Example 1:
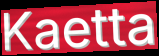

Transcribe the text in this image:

Kaetta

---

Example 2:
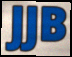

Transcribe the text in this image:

JJB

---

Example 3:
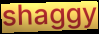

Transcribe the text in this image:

shaggy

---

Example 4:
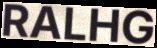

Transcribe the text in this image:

RALHG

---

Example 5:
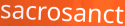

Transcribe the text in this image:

sacrosanct